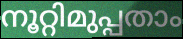
നൂറ്റിമുപ്പതാം